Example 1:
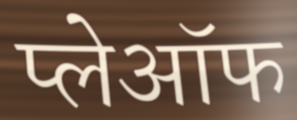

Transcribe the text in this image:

प्‍लेऑफ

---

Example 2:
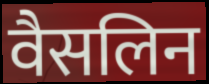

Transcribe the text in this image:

वैसलिन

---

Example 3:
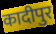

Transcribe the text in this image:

कादीपुर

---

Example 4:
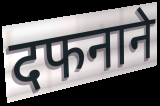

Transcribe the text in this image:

दफनाने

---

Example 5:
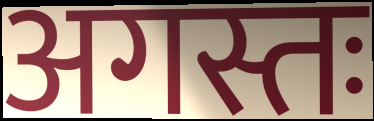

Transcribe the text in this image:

अगस्तः